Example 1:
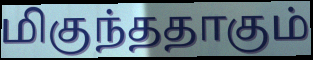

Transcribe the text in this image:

மிகுந்ததாகும்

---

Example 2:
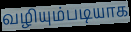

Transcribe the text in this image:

வழியும்படியாக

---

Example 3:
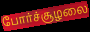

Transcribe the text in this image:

போர்ச்சூழலை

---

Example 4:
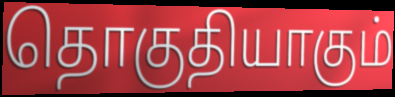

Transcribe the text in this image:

தொகுதியாகும்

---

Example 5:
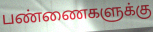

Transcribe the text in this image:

பண்ணைகளுக்கு